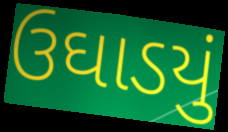
ઉઘાડયું